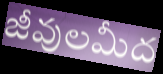
జీవులమీద